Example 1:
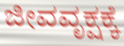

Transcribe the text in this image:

ಜೀವವೃಕ್ಷಕ್ಕೆ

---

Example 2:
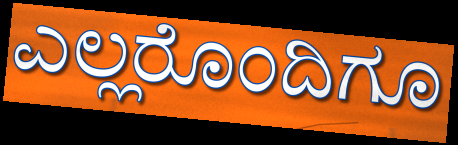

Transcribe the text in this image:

ಎಲ್ಲರೊಂದಿಗೂ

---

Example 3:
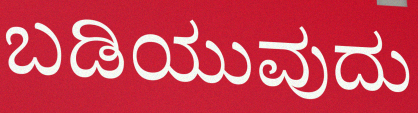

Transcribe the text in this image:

ಬಡಿಯುವುದು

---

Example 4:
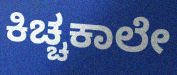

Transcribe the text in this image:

ಕಿಚ್ಚಕಾಲೇ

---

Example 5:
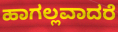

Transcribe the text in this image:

ಹಾಗಲ್ಲವಾದರೆ